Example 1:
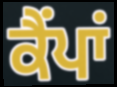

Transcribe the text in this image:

ਕੈੰਪਾਂ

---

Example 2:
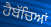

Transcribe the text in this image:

ਹੈਬੱਚਿਆਂ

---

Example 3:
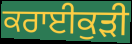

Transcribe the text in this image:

ਕਰਾਈਕੁੜੀ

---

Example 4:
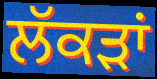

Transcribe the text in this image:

ਲੱਕੜਾਂ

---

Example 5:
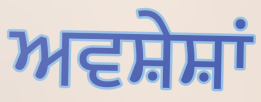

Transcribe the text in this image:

ਅਵਸ਼ੇਸ਼ਾਂ